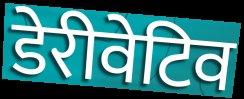
डेरीवेटिव